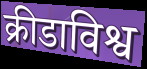
क्रीडाविश्व